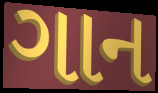
ગાન